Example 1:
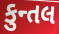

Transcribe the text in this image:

કુન્તલ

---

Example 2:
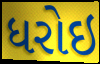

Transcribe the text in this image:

ધરોઇ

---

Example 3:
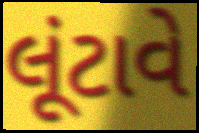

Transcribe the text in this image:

લૂંટાવે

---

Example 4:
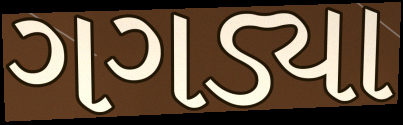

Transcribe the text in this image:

ગગડ્યા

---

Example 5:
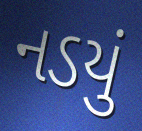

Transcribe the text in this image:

નડયું